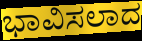
ಭಾವಿಸಲಾದ